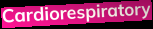
Cardiorespiratory